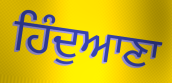
ਹਿੰਦੁਆਣਾ